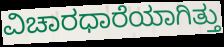
ವಿಚಾರಧಾರೆಯಾಗಿತ್ತು